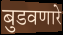
बुडवणारे